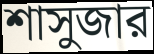
শাসুজার